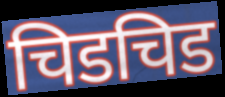
चिडचिड